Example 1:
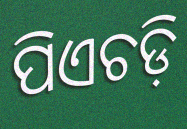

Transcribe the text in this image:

ପିଏଚଡ଼ି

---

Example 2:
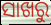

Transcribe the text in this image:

ସାଖରୁ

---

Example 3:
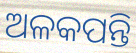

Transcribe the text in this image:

ଅଳକପନ୍ତି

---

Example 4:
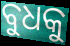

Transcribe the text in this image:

ବୁଧକୁ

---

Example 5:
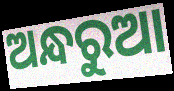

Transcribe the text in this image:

ଅନ୍ଧରୁଆ